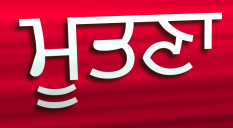
ਮੂਤਣਾ